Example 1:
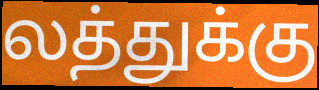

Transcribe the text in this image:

லத்துக்கு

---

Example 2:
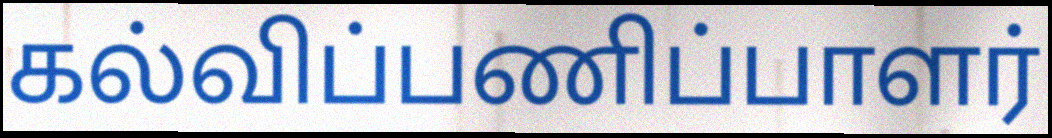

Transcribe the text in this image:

கல்விப்பணிப்பாளர்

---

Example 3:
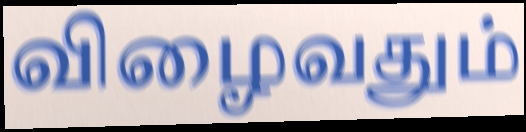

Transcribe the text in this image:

விழைவதும்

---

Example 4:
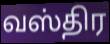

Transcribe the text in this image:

வஸ்திர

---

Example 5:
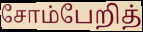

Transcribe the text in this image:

சோம்பேறித்